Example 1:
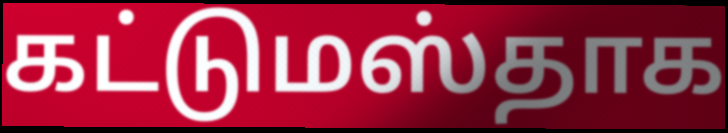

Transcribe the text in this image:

கட்டுமஸ்தாக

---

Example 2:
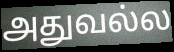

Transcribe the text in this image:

அதுவல்ல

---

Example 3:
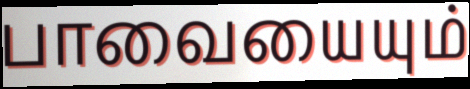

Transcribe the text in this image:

பாவையையும்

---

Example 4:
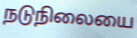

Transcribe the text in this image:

நடுநிலையை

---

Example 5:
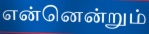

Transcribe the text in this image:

என்னென்றும்